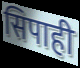
सिपाही